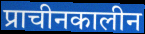
प्राचीनकालीन